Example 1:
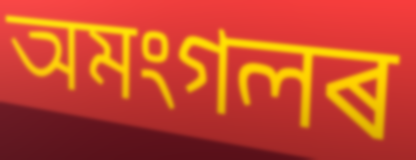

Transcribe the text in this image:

অমংগলৰ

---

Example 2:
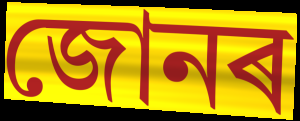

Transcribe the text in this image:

জোনৰ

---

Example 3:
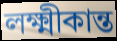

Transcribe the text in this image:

লক্ষ্মীকান্ত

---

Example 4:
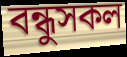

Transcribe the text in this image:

বন্ধুসকল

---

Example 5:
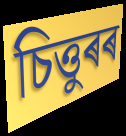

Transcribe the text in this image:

চিত্তুৰৰ